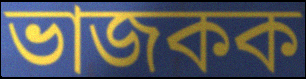
ভাজকক